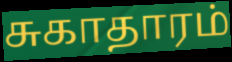
சுகாதாரம்